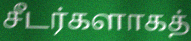
சீடர்களாகத்